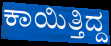
ಕಾಯಿತ್ತಿದ್ದ